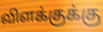
விளக்குக்கு